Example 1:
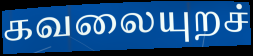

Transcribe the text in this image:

கவலையுறச்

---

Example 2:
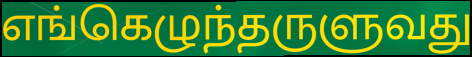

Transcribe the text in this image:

எங்கெழுந்தருளுவது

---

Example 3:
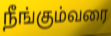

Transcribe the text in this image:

நீங்கும்வரை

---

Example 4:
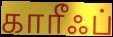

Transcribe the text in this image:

காரீஃப்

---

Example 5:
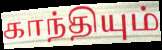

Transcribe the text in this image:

காந்தியும்